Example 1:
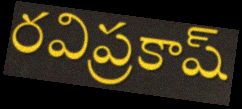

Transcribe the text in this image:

రవిప్రకాష్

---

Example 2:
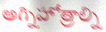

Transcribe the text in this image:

అగ్నిహోత్రాల్ని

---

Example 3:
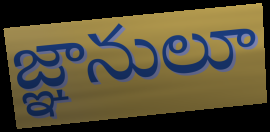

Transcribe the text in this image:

జ్ఞానులూ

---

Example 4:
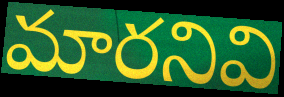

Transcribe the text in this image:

మారనివి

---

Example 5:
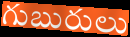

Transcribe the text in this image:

గుబురులు